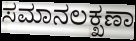
ಸಮಾನಲಕ್ಖಣಾ